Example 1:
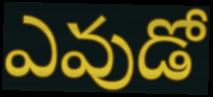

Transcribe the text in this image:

ఎవుడో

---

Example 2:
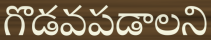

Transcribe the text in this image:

గొడవపడాలని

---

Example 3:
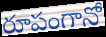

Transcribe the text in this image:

రూపంగానో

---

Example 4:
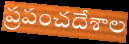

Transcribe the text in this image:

ప్రపంచదేశాల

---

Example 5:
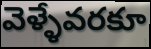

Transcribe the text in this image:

వెళ్ళేవరకూ